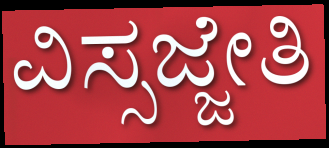
ವಿಸ್ಸಜ್ಜೇತಿ